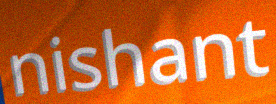
nishant